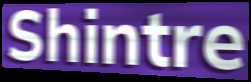
Shintre